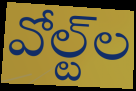
వోల్ట్‌ల